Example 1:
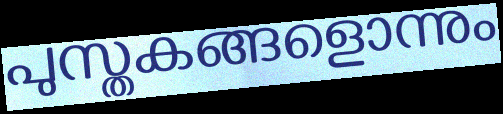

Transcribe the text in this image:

പുസ്തകങ്ങളൊന്നും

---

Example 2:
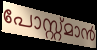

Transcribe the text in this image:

പോസ്റ്റ്മാൻ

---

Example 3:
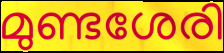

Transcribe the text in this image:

മുണ്ടശേരി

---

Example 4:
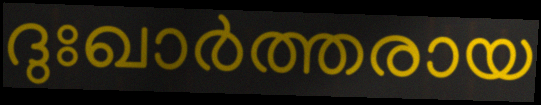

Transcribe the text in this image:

ദുഃഖാർത്തരായ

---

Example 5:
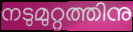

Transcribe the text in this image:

നടുമുറ്റത്തിനു